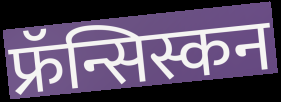
फ्रॅन्सिस्कन